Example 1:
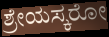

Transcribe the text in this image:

ಶ್ರೇಯಸ್ಕರೋ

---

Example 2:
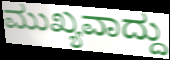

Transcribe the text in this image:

ಮುಖ್ಯವಾದ್ದು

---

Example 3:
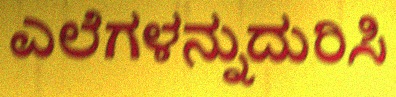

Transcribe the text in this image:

ಎಲೆಗಳನ್ನುದುರಿಸಿ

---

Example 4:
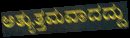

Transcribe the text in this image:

ಅತ್ಯುತ್ತಮವಾದದ್ದು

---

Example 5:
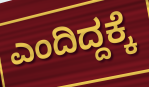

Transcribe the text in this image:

ಎಂದಿದ್ದಕ್ಕೆ